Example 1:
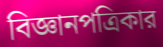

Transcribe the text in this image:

বিজ্ঞানপত্রিকার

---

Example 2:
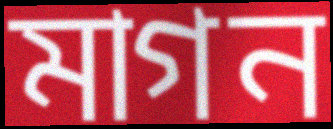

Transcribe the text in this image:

মাগন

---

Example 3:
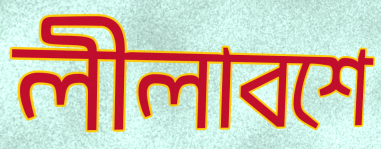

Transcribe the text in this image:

লীলাবশে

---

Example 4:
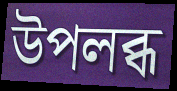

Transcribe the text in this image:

উপলব্ধ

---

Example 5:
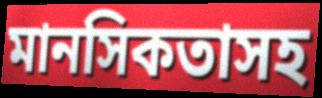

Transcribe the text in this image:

মানসিকতাসহ